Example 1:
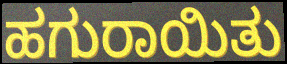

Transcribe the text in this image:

ಹಗುರಾಯಿತು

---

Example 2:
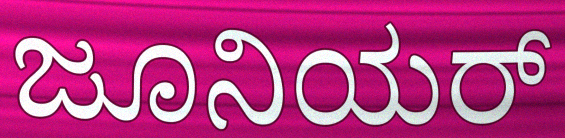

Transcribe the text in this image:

ಜೂನಿಯರ್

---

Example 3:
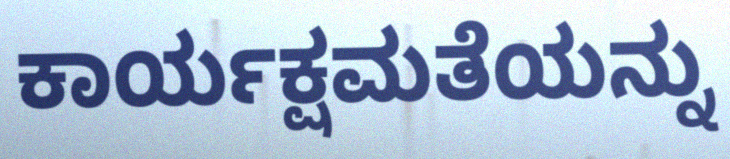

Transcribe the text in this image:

ಕಾರ್ಯಕ್ಷಮತೆಯನ್ನು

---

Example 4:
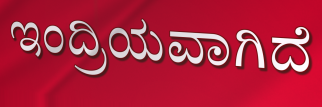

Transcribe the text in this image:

ಇಂದ್ರಿಯವಾಗಿದೆ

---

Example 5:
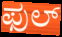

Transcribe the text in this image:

ಫುಲ್